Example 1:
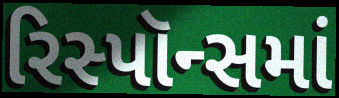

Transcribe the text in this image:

રિસ્પૉન્સમાં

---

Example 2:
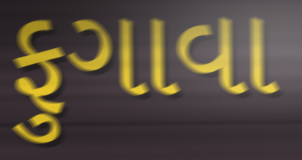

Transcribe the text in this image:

ફુગાવા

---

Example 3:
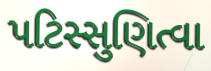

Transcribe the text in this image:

પટિસ્સુણિત્વા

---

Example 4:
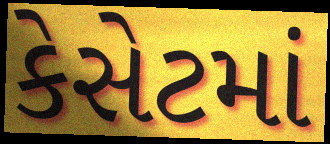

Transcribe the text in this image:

કેસેટમાં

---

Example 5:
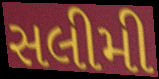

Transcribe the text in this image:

સલીમી